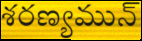
శరణ్యమున్